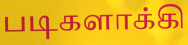
படிகளாக்கி